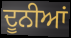
ਦੂਨੀਆਂ